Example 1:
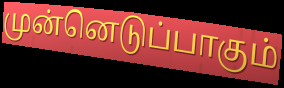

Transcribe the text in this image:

முன்னெடுப்பாகும்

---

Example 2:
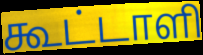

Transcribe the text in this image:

கூட்டாளி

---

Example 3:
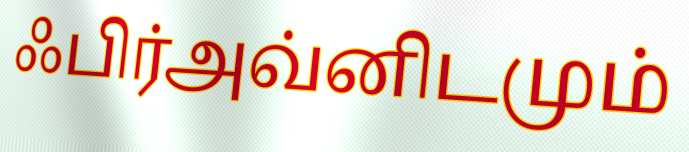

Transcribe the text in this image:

ஃபிர்அவ்னிடமும்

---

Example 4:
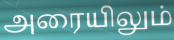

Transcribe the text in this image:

அரையிலும்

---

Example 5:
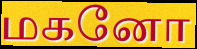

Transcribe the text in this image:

மகனோ